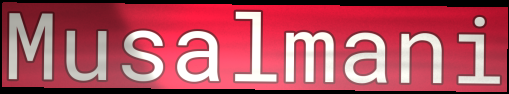
Musalmani